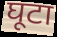
घूटा